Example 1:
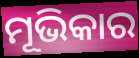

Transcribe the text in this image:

ମୂଭିକାର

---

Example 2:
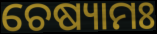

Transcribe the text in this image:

ଚେଷ୍ୟାମଃ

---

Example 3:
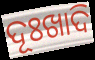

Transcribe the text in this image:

ଦୂଃଖାଦି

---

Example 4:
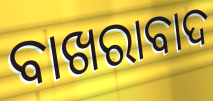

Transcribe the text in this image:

ବାଖରାବାଦ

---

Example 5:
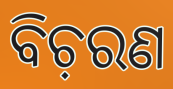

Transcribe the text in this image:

ବିଚ଼ରଣ